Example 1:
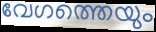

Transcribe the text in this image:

വേഗത്തെയും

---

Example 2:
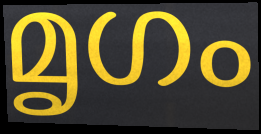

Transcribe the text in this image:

മൃഗം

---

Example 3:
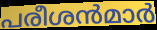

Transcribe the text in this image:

പരീശൻമാർ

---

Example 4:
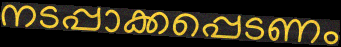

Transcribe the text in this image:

നടപ്പാക്കപ്പെടണം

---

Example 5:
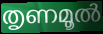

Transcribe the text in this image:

തൃണമൂൽ